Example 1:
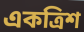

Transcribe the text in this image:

একত্রিশ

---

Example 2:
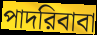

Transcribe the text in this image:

পাদরিবাবা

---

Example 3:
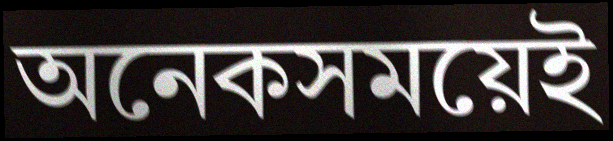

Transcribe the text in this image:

অনেকসময়েই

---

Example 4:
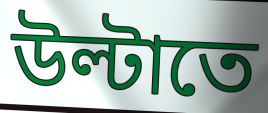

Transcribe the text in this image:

উল্টাতে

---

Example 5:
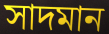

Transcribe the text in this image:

সাদমান